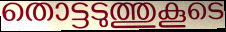
തൊട്ടടുത്തുകൂടെ